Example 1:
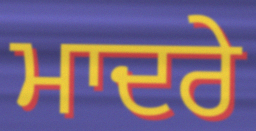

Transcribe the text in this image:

ਮਾਦਰੇ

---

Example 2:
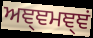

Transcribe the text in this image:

ਅਞ੍ਞਮਞ੍ਞਂ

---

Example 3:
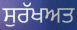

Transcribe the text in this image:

ਸੁਰੱਖਅਤ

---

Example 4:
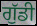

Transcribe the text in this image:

ਗੁੱਡੀ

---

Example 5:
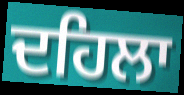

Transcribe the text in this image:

ਦਹਿਲਾ